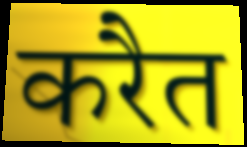
करैत